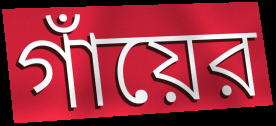
গাঁয়ের